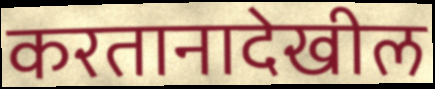
करतानादेखील